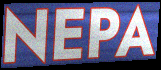
NEPA